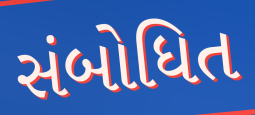
સંબોધિત